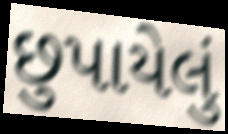
છુપાયેલું